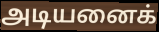
அடியனைக்